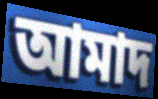
আমাদ